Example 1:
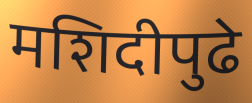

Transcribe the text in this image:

मशिदीपुढे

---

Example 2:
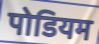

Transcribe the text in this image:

पोडियम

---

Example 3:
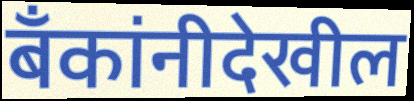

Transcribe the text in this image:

बँकांनीदेखील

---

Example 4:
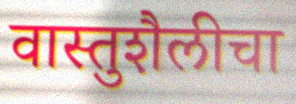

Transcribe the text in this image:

वास्तुशैलीचा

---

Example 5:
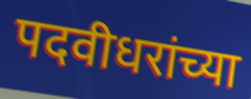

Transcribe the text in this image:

पदवीधरांच्या